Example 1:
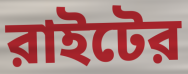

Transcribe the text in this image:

রাইটের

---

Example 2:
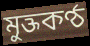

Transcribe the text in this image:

মুক্তকণ্ঠ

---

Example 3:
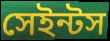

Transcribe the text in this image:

সেইন্টস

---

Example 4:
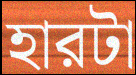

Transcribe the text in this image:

হারটা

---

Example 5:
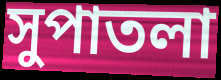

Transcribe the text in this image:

সুপাতলা